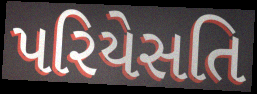
પરિયેસતિ